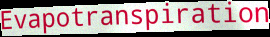
Evapotranspiration